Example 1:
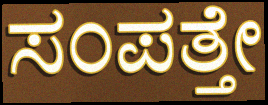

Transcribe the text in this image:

ಸಂಪತ್ತೇ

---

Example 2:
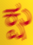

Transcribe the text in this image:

ಕ್ಷು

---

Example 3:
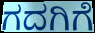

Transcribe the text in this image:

ಗದಗಿಗೆ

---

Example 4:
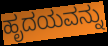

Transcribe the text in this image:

ಹೃದಯವನ್ನು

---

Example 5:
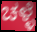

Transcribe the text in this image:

ಚಳ್ಳೆ